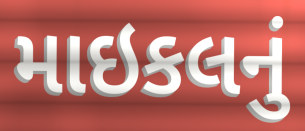
માઇકલનું